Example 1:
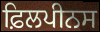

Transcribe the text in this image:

ਫ਼ਿਲਪੀਨਸ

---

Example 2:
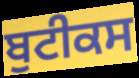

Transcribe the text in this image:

ਬੁਟੀਕਸ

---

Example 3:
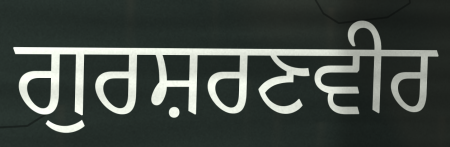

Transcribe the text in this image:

ਗੁਰਸ਼ਰਣਵੀਰ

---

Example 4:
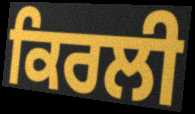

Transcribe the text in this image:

ਕਿਰਲੀ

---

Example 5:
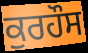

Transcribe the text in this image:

ਕੁਰਹੌਸ